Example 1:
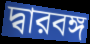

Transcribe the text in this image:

দ্বারবঙ্গ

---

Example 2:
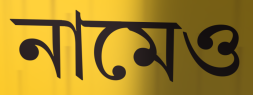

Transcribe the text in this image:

নামেও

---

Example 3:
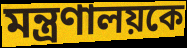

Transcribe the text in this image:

মন্ত্রণালয়কে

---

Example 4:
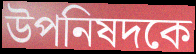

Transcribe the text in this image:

উপনিষদকে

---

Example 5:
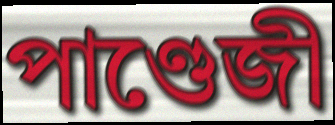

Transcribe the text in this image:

পাণ্ডেজী